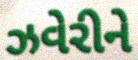
ઝવેરીને